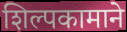
शिल्पकामाने